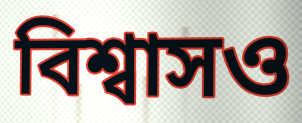
বিশ্বাসও